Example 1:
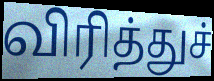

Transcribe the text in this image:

விரித்துச்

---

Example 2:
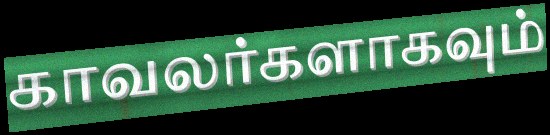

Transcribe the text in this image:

காவலர்களாகவும்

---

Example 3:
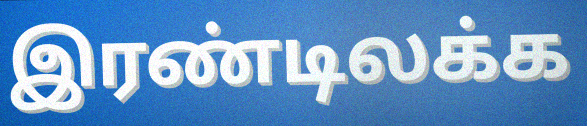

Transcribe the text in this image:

இரண்டிலக்க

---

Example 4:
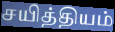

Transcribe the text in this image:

சயித்தியம்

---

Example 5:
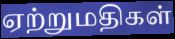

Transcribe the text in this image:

ஏற்றுமதிகள்